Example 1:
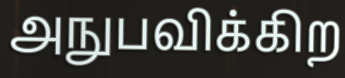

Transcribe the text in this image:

அநுபவிக்கிற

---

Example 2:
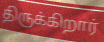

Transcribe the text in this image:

திருக்கிறார்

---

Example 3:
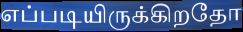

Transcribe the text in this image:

எப்படியிருக்கிறதோ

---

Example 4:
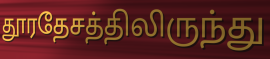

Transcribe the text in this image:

தூரதேசத்திலிருந்து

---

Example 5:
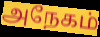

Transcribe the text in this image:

அநேகம்